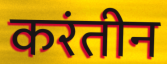
करंतीन